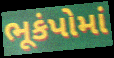
ભૂકંપોમાં